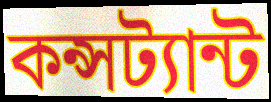
কন্সট্যান্ট